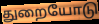
துறையோடு